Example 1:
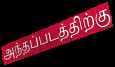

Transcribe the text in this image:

அந்தப்படத்திற்கு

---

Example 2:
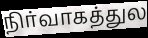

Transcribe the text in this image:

நிர்வாகத்துல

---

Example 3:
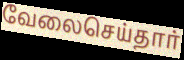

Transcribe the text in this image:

வேலைசெய்தார்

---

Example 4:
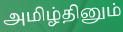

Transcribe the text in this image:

அமிழ்தினும்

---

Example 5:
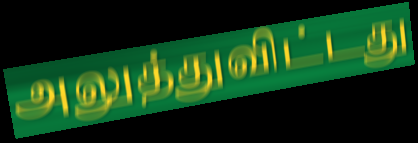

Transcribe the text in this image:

அலுத்துவிட்டது